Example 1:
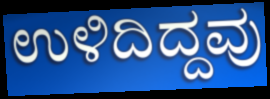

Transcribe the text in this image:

ಉಳಿದಿದ್ದವು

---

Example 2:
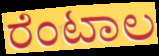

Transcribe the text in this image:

ರೆಂಟಾಲ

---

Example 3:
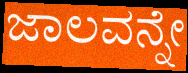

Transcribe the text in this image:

ಜಾಲವನ್ನೇ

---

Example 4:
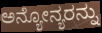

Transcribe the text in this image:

ಅನ್ಯೋನ್ಯರನ್ನು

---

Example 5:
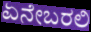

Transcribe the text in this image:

ಏನೇಬರಲಿ